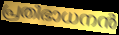
പ്രതിഭാധനൻ